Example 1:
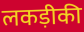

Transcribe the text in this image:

लकड़ीकी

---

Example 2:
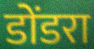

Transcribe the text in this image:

डोंडरा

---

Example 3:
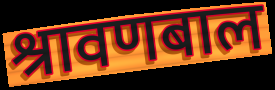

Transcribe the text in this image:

श्रावणबाल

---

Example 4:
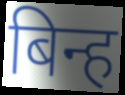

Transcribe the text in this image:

बिन्ह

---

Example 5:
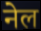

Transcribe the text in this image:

नेल